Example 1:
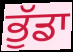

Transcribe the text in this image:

ਭੁੱਡਾ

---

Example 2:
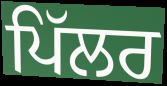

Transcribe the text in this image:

ਪਿੱਲਰ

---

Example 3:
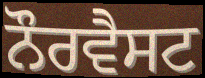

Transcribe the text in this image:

ਨੌਰਵੈਸਟ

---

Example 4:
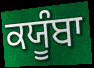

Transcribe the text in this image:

ਕਯੂੰਬਾ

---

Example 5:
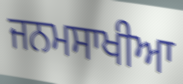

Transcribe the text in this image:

ਜਨਮਸਾਖੀਆ